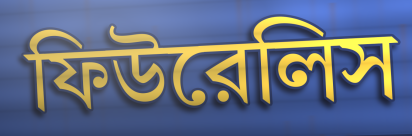
ফিউরেলিস